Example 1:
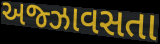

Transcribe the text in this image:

અજ્ઝાવસતા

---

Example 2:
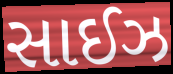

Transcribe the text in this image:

સાઈઝ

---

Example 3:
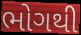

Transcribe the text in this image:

ભોગથી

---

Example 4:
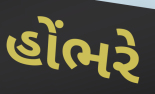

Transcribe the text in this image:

હોંભરે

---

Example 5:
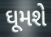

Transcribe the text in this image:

ઘૂમશે